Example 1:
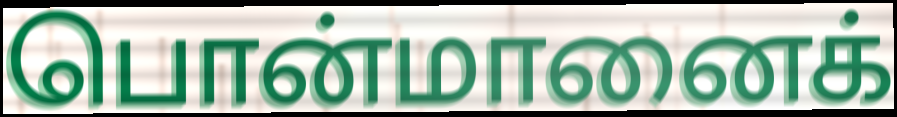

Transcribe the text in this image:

பொன்மானைக்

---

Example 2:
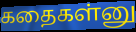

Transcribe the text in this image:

கதைகள்னு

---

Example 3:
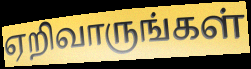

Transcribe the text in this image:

ஏறிவாருங்கள்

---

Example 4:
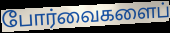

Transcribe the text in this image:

போர்வைகளைப்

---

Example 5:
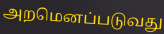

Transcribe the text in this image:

அறமெனப்படுவது